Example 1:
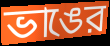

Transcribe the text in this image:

ভাঙের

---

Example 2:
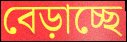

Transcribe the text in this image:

বেড়াচ্ছে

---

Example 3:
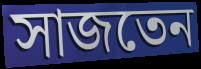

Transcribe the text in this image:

সাজতেন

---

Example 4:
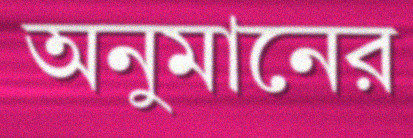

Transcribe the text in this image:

অনুমানের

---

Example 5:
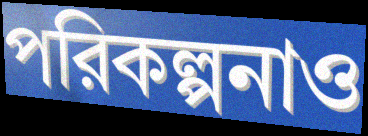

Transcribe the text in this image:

পরিকল্পনাও